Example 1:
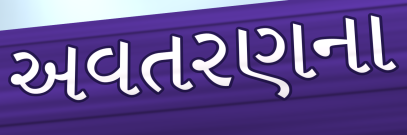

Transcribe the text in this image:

અવતરણના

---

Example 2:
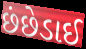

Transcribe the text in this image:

છંછેડાઈ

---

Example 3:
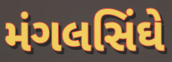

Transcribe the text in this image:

મંગલસિંઘે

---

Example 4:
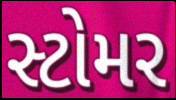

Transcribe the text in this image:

સ્ટોમર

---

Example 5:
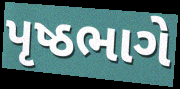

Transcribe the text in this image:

પૃષ્ઠભાગે